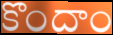
కొందాం